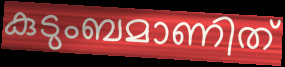
കുടുംബമാണിത്